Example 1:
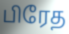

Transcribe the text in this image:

பிரேத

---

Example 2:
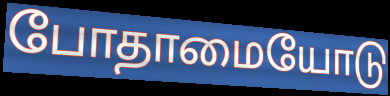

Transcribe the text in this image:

போதாமையோடு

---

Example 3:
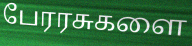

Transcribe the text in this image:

பேரரசுகளை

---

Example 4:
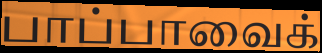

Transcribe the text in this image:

பாப்பாவைக்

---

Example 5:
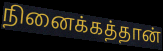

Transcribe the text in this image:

நினைக்கத்தான்